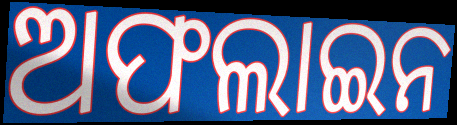
ଅଫଲାଇନ